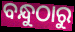
ବନ୍ଧୁଠାରୁ